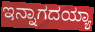
ಇನ್ನಾಗದಯ್ಯಾ